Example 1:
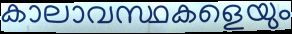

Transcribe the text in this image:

കാലാവസ്ഥകളെയും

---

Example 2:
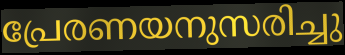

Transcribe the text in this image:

പ്രേരണയനുസരിച്ചു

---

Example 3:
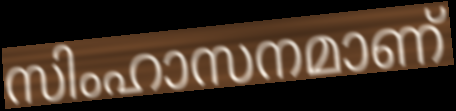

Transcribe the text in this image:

സിംഹാസനമാണ്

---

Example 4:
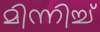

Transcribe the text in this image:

മിന്നിച്ച്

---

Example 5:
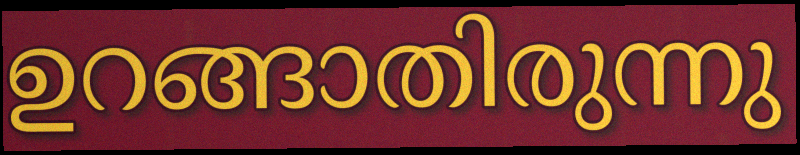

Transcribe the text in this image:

ഉറങ്ങാതിരുന്നു